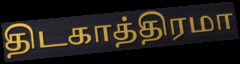
திடகாத்திரமா